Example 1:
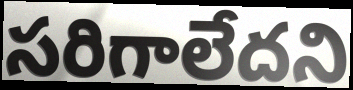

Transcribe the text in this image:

సరిగాలేదని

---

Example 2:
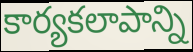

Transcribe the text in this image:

కార్యకలాపాన్ని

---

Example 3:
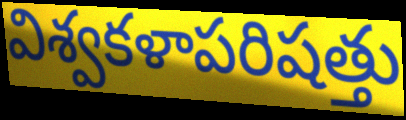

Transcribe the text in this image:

విశ్వకళాపరిషత్తు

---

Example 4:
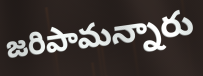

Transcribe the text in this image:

జరిపామన్నారు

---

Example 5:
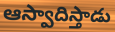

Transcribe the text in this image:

ఆస్వాదిస్తాడు